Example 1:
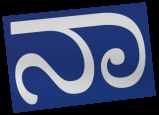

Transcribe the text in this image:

ನಾ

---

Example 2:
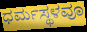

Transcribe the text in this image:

ಧರ್ಮಸ್ಥಳವೂ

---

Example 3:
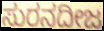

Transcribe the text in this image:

ಸುರನದೀಜ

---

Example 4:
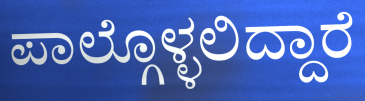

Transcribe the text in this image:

ಪಾಲ್ಗೊಳ್ಳಲಿದ್ದಾರೆ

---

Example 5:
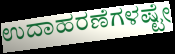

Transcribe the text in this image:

ಉದಾಹರಣೆಗಳಷ್ಟೇ